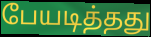
பேயடித்தது